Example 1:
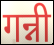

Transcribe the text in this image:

गन्नी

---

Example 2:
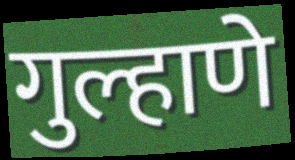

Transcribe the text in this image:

गुल्हाणे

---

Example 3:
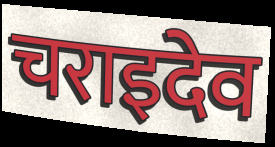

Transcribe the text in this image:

चराइदेव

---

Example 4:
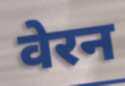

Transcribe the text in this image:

वेरन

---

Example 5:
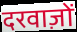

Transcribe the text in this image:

दरवाज़ों